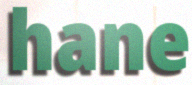
hane